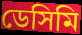
ডেসিমি